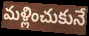
మళ్లించుకునే